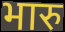
भारु